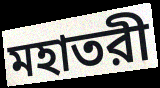
মহাতরী